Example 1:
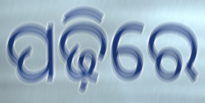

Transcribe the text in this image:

ପଢ଼ିରେ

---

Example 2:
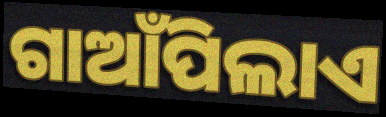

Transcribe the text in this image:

ଗାଆଁପିଲାଏ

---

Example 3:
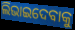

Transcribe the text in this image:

ଲିଭାଇଦେବାକୁ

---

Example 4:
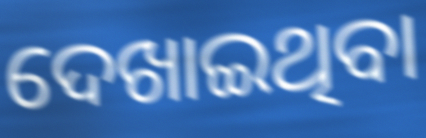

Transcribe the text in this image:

ଦେଖାଇଥିବା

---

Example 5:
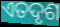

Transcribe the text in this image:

ଏତଦୃଶ